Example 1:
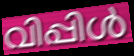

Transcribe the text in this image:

വിപ്പിൾ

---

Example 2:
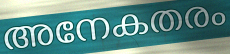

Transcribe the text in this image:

അനേകതരം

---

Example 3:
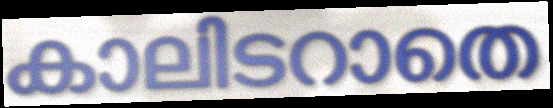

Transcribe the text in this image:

കാലിടറാതെ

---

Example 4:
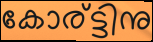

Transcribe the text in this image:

കോര്ട്ടിനു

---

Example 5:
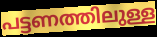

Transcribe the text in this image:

പട്ടണത്തിലുള്ള